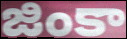
జింకా